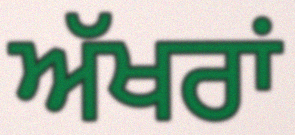
ਅੱਖਰਾਂ